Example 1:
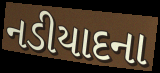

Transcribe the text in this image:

નડીયાદના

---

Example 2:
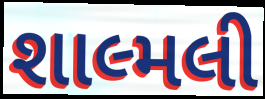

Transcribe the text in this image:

શાલ્મલી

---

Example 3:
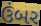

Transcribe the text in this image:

ઉંબર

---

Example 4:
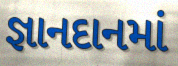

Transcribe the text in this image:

જ્ઞાનદાનમાં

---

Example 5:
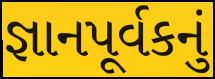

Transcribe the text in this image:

જ્ઞાનપૂર્વકનું